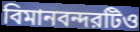
বিমানবন্দরটিও